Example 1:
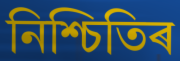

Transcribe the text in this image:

নিশ্চিতিৰ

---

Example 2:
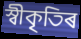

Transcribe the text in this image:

স্বীকৃতিৰ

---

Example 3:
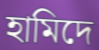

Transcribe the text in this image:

হামিদে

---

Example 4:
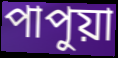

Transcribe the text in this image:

পাপুয়া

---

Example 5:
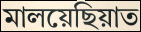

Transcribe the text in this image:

মালয়েছিয়াত